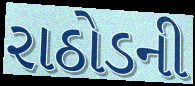
રાઠોડની